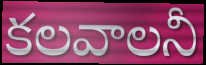
కలవాలనీ